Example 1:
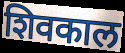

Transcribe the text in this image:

शिवकाल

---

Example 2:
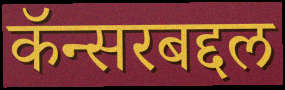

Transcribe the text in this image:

कॅन्सरबद्दल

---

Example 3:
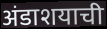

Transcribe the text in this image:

अंडाशयाची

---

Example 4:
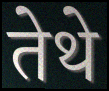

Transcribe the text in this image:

तेथे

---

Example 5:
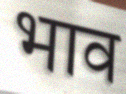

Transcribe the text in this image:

भाव